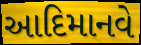
આદિમાનવે